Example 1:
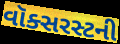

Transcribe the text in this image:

વૉક્સરસ્ટની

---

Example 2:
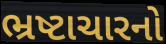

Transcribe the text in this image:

ભ્રષ્ટાચારનો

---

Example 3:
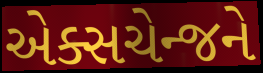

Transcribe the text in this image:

એક્સચેન્જને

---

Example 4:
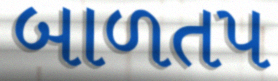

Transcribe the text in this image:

બાળતપ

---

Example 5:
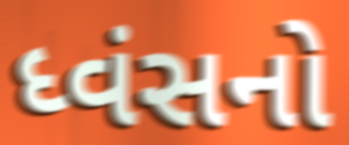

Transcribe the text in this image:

ધ્વંસનો